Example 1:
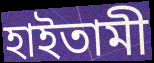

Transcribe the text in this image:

হাইতামী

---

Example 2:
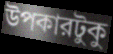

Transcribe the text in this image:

উপকারটুকু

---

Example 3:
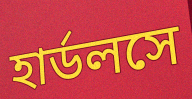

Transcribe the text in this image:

হার্ডলসে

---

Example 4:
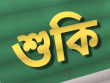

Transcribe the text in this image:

শুকি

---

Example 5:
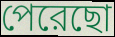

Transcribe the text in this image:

পেরেছো